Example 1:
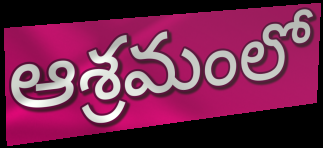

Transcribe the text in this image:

ఆశ్రమంలో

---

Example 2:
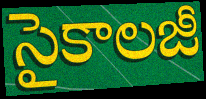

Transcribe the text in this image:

సైకాలజీ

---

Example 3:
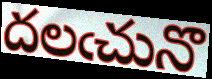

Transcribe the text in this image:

దలఁచునొ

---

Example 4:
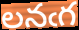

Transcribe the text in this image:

లనఁగ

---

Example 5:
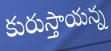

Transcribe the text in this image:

కురుస్తాయన్న